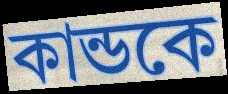
কান্ডকে